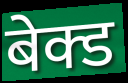
बेक्ड